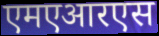
एमएआरएस